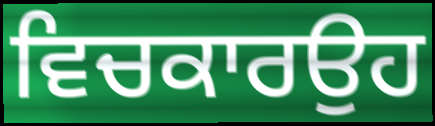
ਵਿਚਕਾਰਉਹ